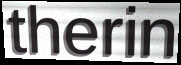
therin